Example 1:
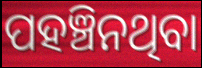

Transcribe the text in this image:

ପହଞ୍ଚିନଥିବା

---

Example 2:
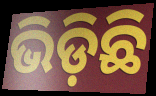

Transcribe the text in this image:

ଭିଡ଼ିଛି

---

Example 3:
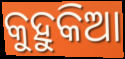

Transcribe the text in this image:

କୁହୁକିଆ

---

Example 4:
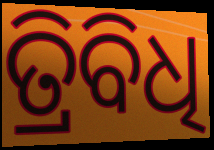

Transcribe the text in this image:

ତ୍ରିବିଧି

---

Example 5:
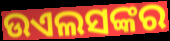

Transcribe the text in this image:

ଉଏଲସଙ୍କର